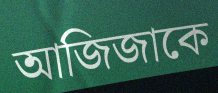
আজিজাকে